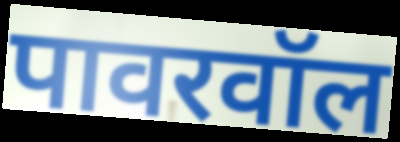
पावरवॉल